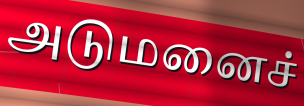
அடுமனைச்